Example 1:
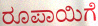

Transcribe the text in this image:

ರೂಪಾಯಿಗೆ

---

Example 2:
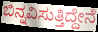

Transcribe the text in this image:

ಬಿನ್ನವಿಸುತ್ತಿದ್ದೇನೆ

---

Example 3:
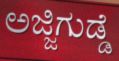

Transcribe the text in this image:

ಅಜ್ಜಿಗುಡ್ಡೆ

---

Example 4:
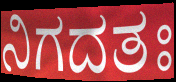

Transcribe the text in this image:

ನಿಗದತಃ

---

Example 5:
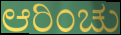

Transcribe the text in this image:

ಆರಿಂಚು